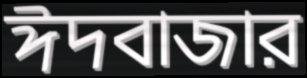
ঈদবাজার